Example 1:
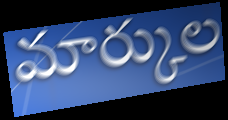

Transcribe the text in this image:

మార్కుల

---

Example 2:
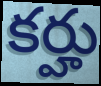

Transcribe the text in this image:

కర్హు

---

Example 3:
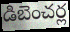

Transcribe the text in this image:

డిబెంచర్ల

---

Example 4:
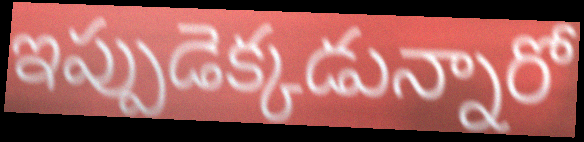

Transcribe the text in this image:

ఇప్పుడెక్కడున్నారో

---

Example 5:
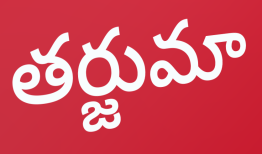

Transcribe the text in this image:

తర్జుమా